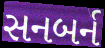
સનબર્ન